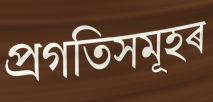
প্ৰগতিসমূহৰ